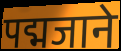
पद्मजाने